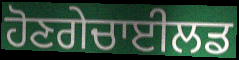
ਹੋਣਗੇਚਾਈਲਡ